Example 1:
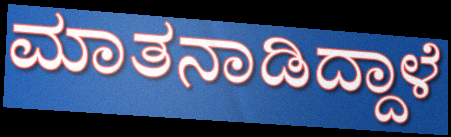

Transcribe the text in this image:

ಮಾತನಾಡಿದ್ದಾಳೆ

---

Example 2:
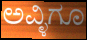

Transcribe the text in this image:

ಅವ್ಳಿಗೂ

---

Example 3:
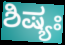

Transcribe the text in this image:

ಶಿಷ್ಯಃ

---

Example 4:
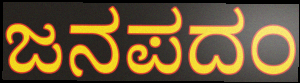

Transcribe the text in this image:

ಜನಪದಂ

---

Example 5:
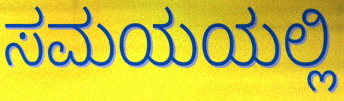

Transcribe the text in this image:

ಸಮಯಯಲ್ಲಿ